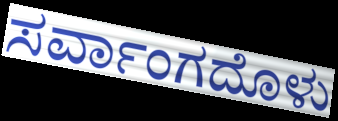
ಸರ್ವಾಂಗದೊಳು